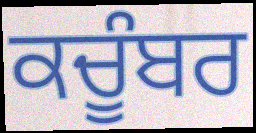
ਕਚੂੰਬਰ